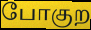
போகுற